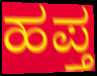
ಹಪ್ತ